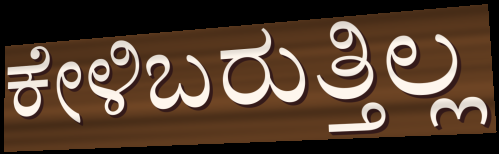
ಕೇಳಿಬರುತ್ತಿಲ್ಲ